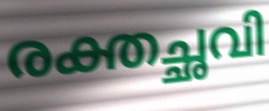
രക്തച്ഛവി